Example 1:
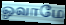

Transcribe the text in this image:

ஓவாமே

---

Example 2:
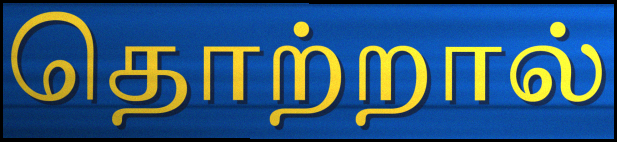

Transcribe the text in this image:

தொற்றால்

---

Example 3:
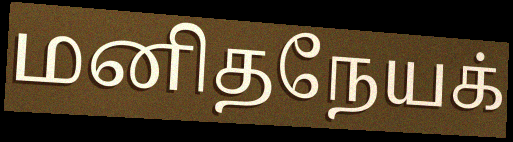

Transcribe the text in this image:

மனிதநேயக்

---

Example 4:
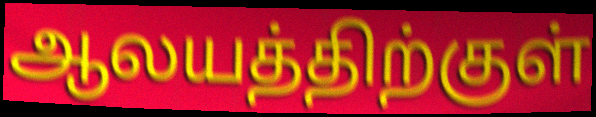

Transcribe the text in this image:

ஆலயத்திற்குள்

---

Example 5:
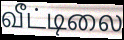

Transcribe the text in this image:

வீட்டிலை